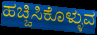
ಹಚ್ಚಿಸಿಕೊಳ್ಳುವ